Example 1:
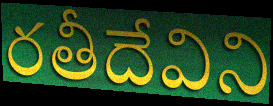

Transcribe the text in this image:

రతీదేవిని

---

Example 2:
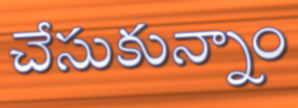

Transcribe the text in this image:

చేసుకున్నాం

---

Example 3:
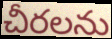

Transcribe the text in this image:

చీరలను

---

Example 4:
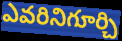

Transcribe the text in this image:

ఎవరినిగూర్చి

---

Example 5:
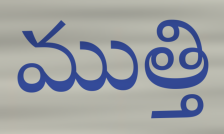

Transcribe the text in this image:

ముత్తి